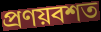
প্রণয়বশত